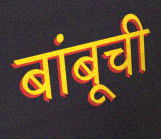
बांबूची